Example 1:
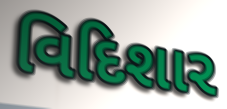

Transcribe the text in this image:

વિદિશાર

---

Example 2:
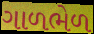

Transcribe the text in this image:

ગાળભેળ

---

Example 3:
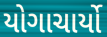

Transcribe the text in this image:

યોગાચાર્યો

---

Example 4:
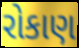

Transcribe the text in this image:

રોકાણ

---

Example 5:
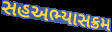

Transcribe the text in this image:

સહઅભ્યાસક્રમ